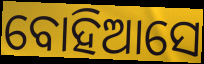
ବୋହିଆସେ